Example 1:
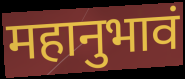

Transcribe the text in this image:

महानुभावं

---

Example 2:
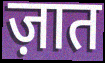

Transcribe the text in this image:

ज़ात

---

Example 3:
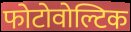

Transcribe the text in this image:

फोटोवोल्टिक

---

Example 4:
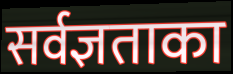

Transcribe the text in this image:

सर्वज्ञताका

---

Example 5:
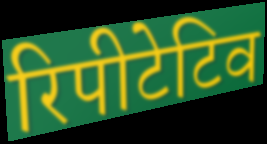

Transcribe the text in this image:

रिपीटेटिव